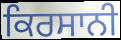
ਕਿਰਸਾਨੀ